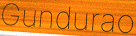
Gundurao